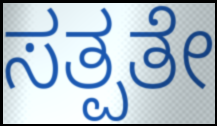
ಸತ್ಪತೇ